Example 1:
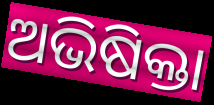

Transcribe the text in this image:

ଅଭିଷିକ୍ତା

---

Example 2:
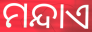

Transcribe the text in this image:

ମନ୍ଦାଏ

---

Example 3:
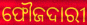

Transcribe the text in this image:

ଫୌଜଦାରୀ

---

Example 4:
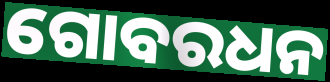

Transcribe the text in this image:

ଗୋବରଧନ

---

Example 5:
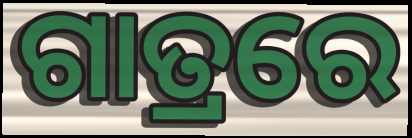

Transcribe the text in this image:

ଗାତ୍ରରେ